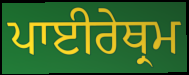
ਪਾਈਰੇਥ੍ਰਮ